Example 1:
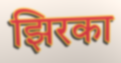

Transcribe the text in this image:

झिरका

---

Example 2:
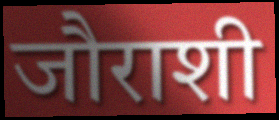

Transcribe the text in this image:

जौराशी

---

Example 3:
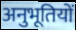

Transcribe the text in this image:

अनुभूतियों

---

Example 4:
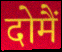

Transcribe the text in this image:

दोमैं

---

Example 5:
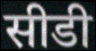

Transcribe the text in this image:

सीडी